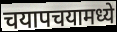
चयापचयामध्ये